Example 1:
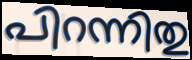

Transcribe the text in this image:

പിറന്നിതു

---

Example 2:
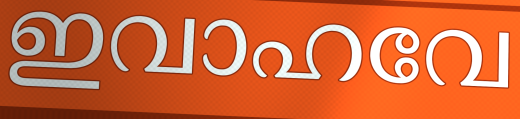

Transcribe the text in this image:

ഇവാഹവേ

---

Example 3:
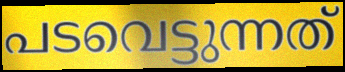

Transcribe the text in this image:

പടവെട്ടുന്നത്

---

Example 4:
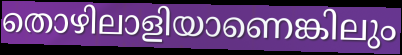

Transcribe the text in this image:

തൊഴിലാളിയാണെങ്കിലും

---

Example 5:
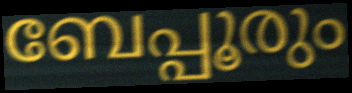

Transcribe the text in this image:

ബേപ്പൂരും